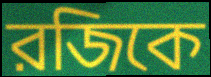
রজিকে